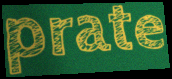
prate